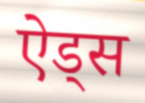
ऐड्स